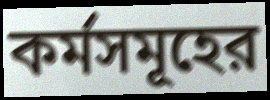
কর্মসমূহের